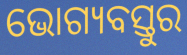
ଭୋଗ୍ୟବସ୍ତୁର